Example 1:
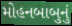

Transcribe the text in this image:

મોહનબાબુનું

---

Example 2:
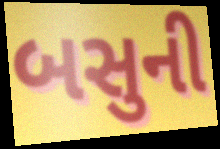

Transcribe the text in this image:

બસુની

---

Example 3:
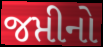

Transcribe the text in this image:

જપ્તીનો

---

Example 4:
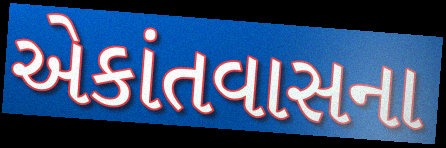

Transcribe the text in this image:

એકાંતવાસના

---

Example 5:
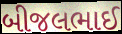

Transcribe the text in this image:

બીજલભાઈ